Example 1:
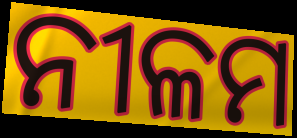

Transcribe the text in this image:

ନୀଳମ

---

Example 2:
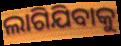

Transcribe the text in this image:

ଲାଗିଯିବାକୁ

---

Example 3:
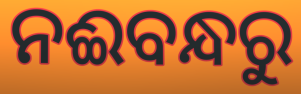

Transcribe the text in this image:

ନଈବନ୍ଧରୁ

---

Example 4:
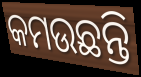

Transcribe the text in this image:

କମଉଛନ୍ତି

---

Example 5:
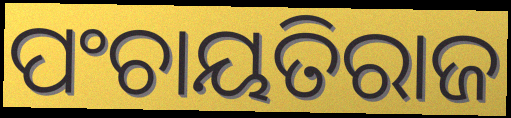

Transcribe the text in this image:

ପଂଚାୟତିରାଜ